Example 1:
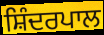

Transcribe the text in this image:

ਸ਼ਿੰਦਰਪਾਲ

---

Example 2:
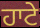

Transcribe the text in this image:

ਹਾਟੇ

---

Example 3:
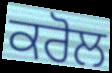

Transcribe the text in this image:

ਕਰੋਲ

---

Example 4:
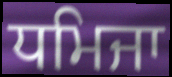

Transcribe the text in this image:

ਧਮਿਜਾ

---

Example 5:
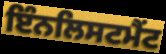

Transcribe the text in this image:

ਇੰਨਲਿਸਟਮੈਂਟ